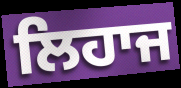
ਲਿਹਾਜ